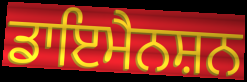
ਡਾਇਮੈਨਸ਼ਨ